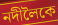
নদীলৈকে